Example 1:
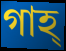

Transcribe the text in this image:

গাহ্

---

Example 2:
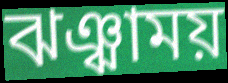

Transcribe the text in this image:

ঝঞ্ঝাময়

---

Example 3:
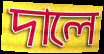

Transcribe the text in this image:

দালে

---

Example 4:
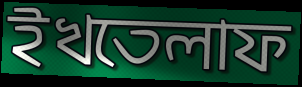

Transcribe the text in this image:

ইখতেলাফ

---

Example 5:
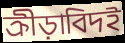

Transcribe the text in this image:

ক্রীড়াবিদই